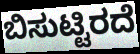
ಬಿಸುಟ್ಟಿರದೆ